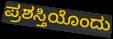
ಪ್ರಶಸ್ತಿಯೊಂದು